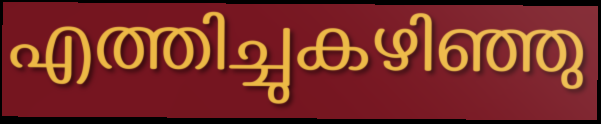
എത്തിച്ചുകഴിഞ്ഞു